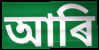
আৰি